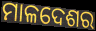
ମାଳଦେଶର